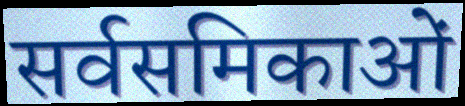
सर्वसमिकाओं